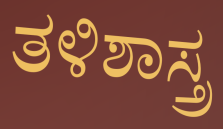
ತಳಿಶಾಸ್ತ್ರ